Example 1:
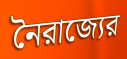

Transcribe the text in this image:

নৈরাজ্যের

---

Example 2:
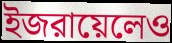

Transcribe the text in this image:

ইজরায়েলেও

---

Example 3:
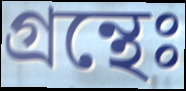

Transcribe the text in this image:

গ্রন্থেঃ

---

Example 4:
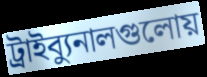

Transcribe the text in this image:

ট্রাইব্যুনালগুলোয়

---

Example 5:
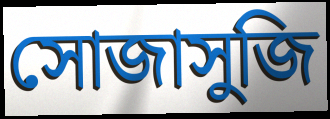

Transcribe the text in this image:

সোজাসুজি